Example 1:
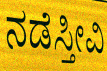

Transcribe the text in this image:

ನಡೆಸ್ತೀವಿ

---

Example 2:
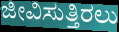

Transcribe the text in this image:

ಜೀವಿಸುತ್ತಿರಲು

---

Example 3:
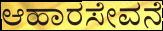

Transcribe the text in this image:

ಆಹಾರಸೇವನೆ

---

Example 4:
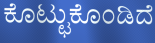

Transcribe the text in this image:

ಕೊಟ್ಟುಕೊಂಡಿದೆ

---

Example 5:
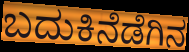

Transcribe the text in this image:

ಬದುಕಿನೆಡೆಗಿನ